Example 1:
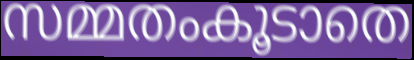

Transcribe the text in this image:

സമ്മതംകൂടാതെ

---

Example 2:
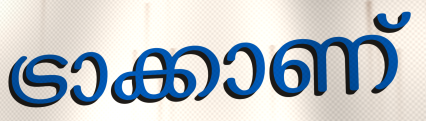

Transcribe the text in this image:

ട്രാക്കാണ്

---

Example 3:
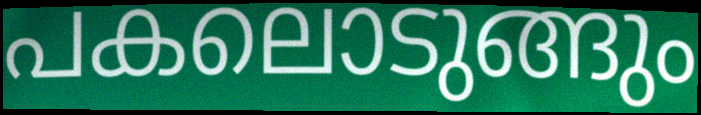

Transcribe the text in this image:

പകലൊടുങ്ങും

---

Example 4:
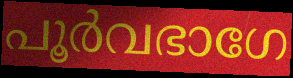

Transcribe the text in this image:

പൂർവഭാഗേ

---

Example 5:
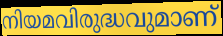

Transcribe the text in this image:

നിയമവിരുദ്ധവുമാണ്